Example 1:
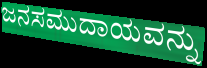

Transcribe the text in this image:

ಜನಸಮುದಾಯವನ್ನು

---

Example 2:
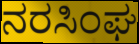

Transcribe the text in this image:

ನರಸಿಂಘ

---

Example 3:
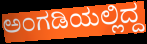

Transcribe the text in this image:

ಅಂಗಡಿಯಲ್ಲಿದ್ದ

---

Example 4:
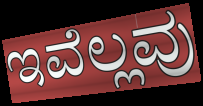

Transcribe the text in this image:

ಇವೆಲ್ಲವು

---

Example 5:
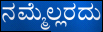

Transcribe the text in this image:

ನಮ್ಮೆಲ್ಲರದು